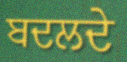
ਬਦਲਦੇ